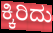
ಕ್ಕಿರಿದು